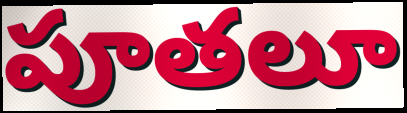
పూతలూ